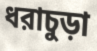
ধরাচুড়া